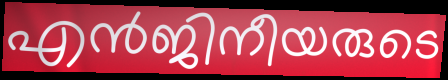
എൻജിനീയരുടെ